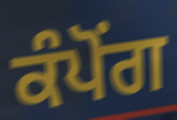
ਕੰਪੋਂਗ